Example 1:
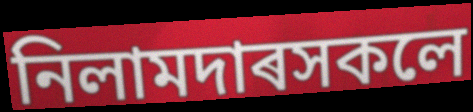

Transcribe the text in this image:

নিলামদাৰসকলে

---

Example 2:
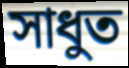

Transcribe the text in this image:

সাধুত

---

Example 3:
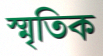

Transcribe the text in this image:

স্মৃতিক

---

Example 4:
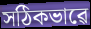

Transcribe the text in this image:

সঠিকভাৱে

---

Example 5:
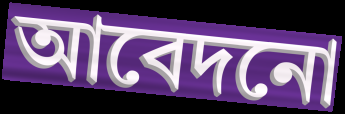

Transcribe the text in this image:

আবেদনো